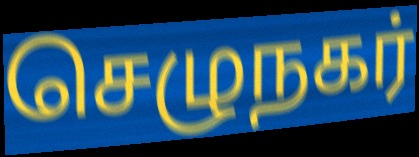
செழுநகர்